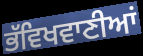
ਭੱਵਿਖਵਾਣੀਆਂ